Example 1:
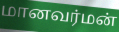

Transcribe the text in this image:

மானவர்மன்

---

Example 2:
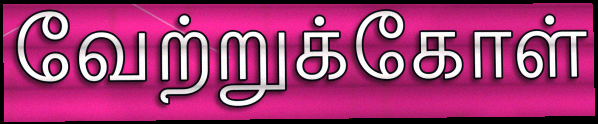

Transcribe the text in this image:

வேற்றுக்கோள்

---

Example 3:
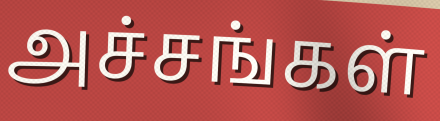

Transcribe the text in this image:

அச்சங்கள்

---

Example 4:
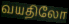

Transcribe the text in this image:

வயதிலோ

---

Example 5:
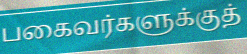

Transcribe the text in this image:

பகைவர்களுக்குத்